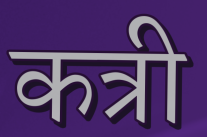
कत्री